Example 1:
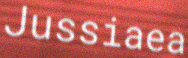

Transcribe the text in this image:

Jussiaea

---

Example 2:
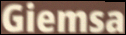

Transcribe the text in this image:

Giemsa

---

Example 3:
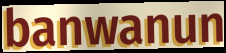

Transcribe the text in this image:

banwanun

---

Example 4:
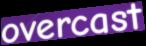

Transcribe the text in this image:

overcast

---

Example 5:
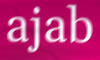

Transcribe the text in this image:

ajab